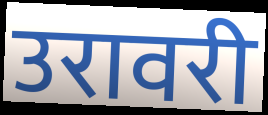
उरावरी